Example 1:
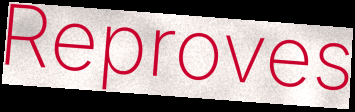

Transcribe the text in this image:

Reproves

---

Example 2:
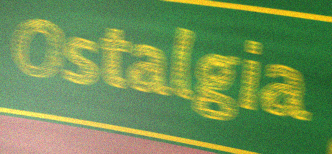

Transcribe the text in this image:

Ostalgia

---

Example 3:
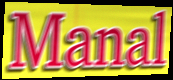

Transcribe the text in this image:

Manal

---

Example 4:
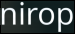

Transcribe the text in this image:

nirop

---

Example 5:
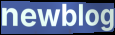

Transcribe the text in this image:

newblog